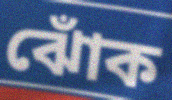
ঝোঁক